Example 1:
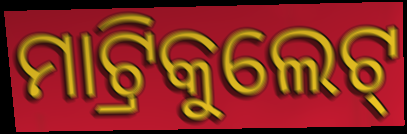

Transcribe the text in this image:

ମାଟ୍ରିକୁଲେଟ୍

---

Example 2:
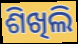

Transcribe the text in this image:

ଶିଖିଲି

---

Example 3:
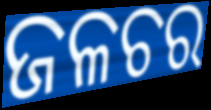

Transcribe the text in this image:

ଜଳଚର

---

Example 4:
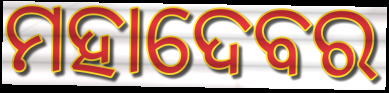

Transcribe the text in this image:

ମହାଦେବର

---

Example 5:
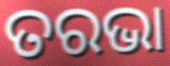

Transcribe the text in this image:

ତରଭା